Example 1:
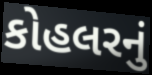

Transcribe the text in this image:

કોહલરનું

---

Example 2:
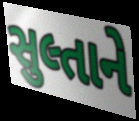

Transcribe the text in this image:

સુલ્તાને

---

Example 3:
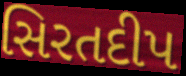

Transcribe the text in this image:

સિરતદીપ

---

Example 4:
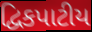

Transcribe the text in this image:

દ્વિકપાટીય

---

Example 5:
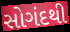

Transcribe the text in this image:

સોગંદથી